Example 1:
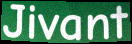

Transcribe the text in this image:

Jivant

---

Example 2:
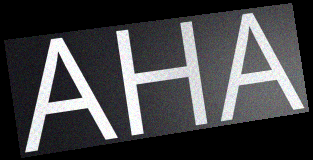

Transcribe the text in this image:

AHA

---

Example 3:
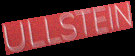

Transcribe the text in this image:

ULLSTEIN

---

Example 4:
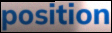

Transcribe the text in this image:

position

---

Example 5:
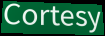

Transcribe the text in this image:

Cortesy